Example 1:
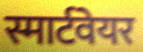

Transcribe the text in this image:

स्मार्टवेयर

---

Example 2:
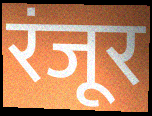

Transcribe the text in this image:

रंजूर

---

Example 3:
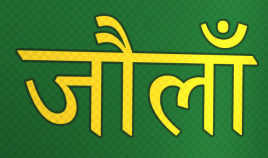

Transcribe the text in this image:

जौलाँ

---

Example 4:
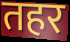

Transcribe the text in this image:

तहर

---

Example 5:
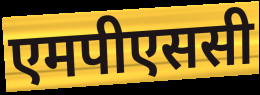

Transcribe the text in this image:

एमपीएससी